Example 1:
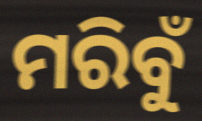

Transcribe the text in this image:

ମରିବୁଁ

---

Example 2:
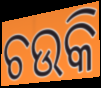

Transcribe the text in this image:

ଚଉକି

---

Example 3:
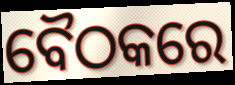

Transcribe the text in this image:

ବୈଠକରେ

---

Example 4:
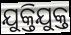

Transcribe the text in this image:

ଯୁକ୍ତିଯୁକ୍ତ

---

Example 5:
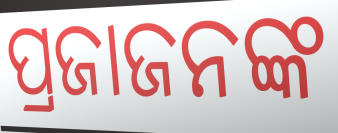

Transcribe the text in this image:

ପ୍ରଜାଜନଙ୍କ